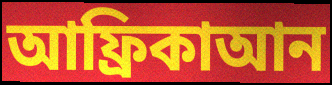
আফ্রিকাআন